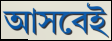
আসবেই